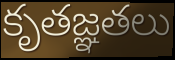
కృతజ్ఞతలు